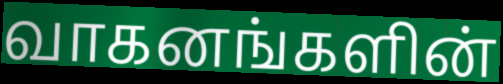
வாகனங்களின்